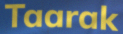
Taarak